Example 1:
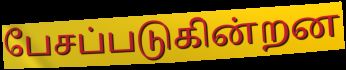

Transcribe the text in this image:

பேசப்படுகின்றன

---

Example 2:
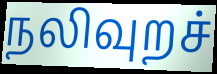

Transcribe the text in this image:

நலிவுறச்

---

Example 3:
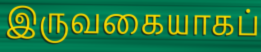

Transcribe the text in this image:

இருவகையாகப்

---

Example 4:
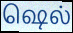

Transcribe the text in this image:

ஷெல்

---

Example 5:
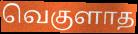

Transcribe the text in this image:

வெகுளாத